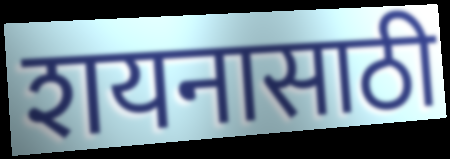
शयनासाठी